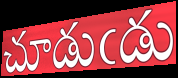
చూడుఁడు